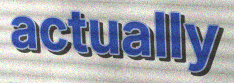
actually